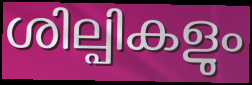
ശില്പികളും